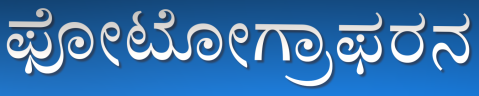
ಫೋಟೋಗ್ರಾಫರನ